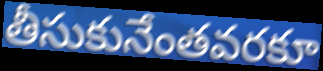
తీసుకునేంతవరకూ